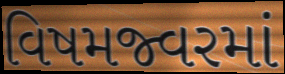
વિષમજ્વરમાં